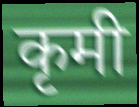
कृमी